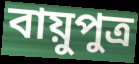
বায়ুপুত্র